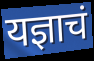
यज्ञाचं